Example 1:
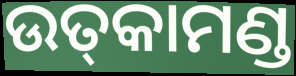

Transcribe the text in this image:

ଉତ୍‌କାମଣ୍ଡ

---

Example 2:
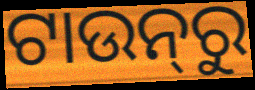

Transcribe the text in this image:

ଟାଉନ୍‌ରୁ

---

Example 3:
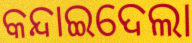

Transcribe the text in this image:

କନ୍ଦାଇଦେଲା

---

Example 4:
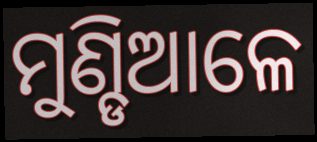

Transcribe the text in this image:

ମୁଣ୍ଡିଆଳେ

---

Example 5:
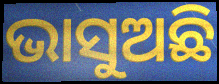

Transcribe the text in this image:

ଭାସୁଅଛି